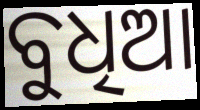
ବୁଧିଆ